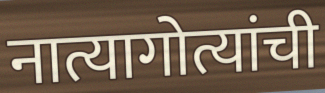
नात्यागोत्यांची